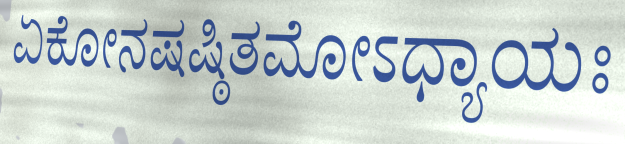
ಏಕೋನಷಷ್ಠಿತಮೋಽಧ್ಯಾಯಃ